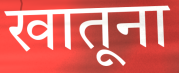
खातूना